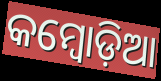
କମ୍ୱୋଡ଼ିଆ